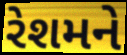
રેશમને